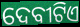
ଦେବୀଟିଏ